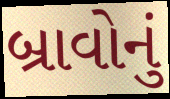
બ્રાવોનું